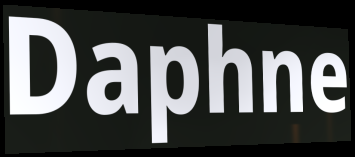
Daphne